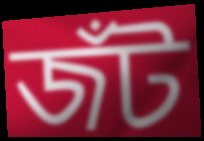
জঁট